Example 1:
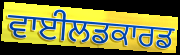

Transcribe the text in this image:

ਵਾਈਲਡਕਾਰਡ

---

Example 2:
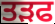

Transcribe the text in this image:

ਤੜਫ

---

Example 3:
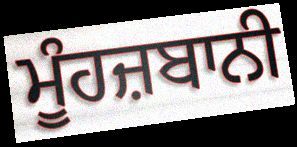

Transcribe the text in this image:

ਮੂੰਹਜ਼ਬਾਨੀ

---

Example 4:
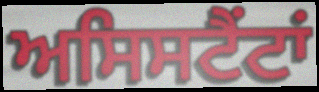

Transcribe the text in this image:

ਅਸਿਸਟੈਂਟਾਂ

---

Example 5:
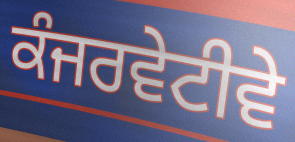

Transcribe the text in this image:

ਕੰਜਰਵੇਟੀਵੇ